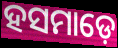
ହସମାଡ଼େ